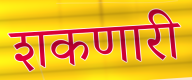
शकणारी